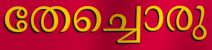
തേച്ചൊരു